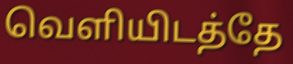
வெளியிடத்தே